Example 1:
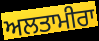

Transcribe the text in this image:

ਅਲਤਾਮੀਰਾ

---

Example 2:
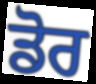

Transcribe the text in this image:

ਡੋਰ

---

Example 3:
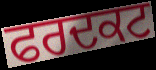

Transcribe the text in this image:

ਫਰਦਕਟ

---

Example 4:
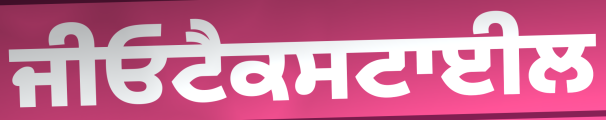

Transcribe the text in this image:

ਜੀਓਟੈਕਸਟਾਈਲ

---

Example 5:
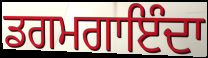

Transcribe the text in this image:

ਡਗਮਗਾਇੰਦਾ